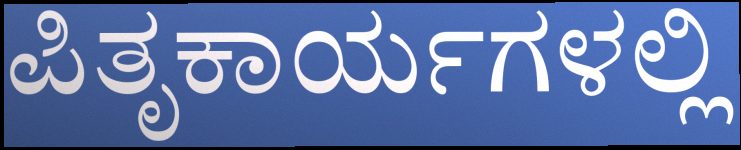
ಪಿತೃಕಾರ್ಯಗಳಲ್ಲಿ